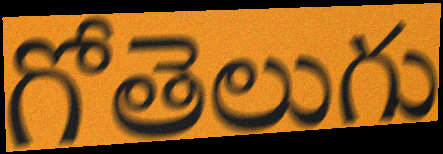
గోతెలుగు